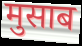
मुसाब